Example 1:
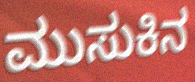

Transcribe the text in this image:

ಮುಸುಕಿನ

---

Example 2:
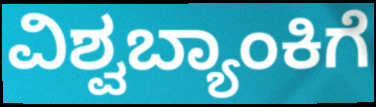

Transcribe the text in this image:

ವಿಶ್ವಬ್ಯಾಂಕಿಗೆ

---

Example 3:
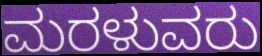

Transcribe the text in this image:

ಮರಳುವರು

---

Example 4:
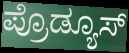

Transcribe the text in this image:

ಪ್ರೊಡ್ಯೂಸ್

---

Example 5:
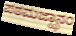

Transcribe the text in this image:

ಪಠಮಜ್ಝಾನಂ